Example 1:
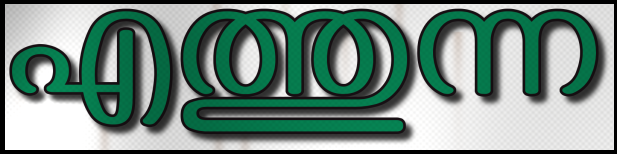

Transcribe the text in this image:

എത്തുന്ന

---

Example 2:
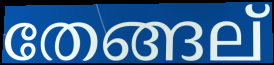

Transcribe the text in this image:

തേങ്ങല്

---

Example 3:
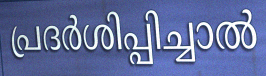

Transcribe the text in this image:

പ്രദർശിപ്പിച്ചാൽ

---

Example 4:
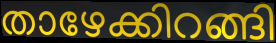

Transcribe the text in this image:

താഴേക്കിറങ്ങി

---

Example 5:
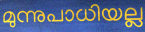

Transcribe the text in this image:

മുന്നുപാധിയല്ല